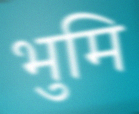
भुमि